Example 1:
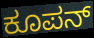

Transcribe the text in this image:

ಕೂಪನ್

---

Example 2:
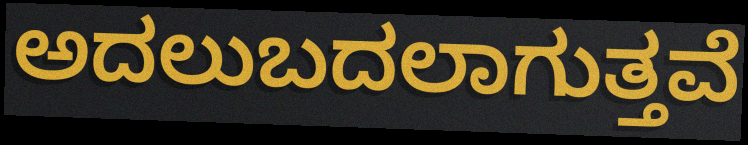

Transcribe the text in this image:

ಅದಲುಬದಲಾಗುತ್ತವೆ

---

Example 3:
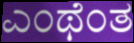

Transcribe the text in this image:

ಎಂಥೆಂತ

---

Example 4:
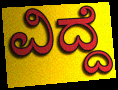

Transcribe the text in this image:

ವಿದ್ದೆ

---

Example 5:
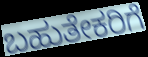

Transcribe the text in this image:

ಬಹುತೇಕರಿಗೆ